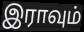
இராவும்